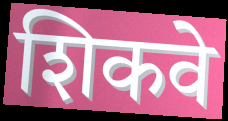
शिकवे